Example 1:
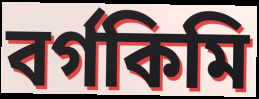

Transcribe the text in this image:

বৰ্গকিমি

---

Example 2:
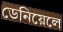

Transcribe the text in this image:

ডেনিয়েলে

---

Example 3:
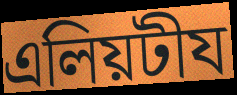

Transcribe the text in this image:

এলিয়টীয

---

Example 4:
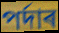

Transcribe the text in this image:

পৰ্দাৰ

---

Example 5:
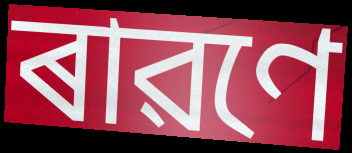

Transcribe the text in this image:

ৰাৱণে